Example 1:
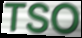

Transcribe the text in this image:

TSO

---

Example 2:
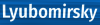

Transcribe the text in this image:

Lyubomirsky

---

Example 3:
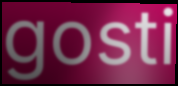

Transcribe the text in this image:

gosti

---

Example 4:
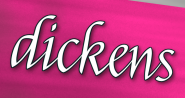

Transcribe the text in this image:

dickens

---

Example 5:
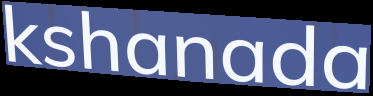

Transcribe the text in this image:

kshanada